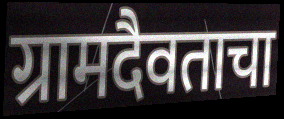
ग्रामदैवताचा